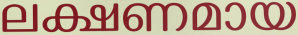
ലക്ഷണമായ